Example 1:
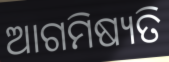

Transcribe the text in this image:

ଆଗମିଷ୍ୟତି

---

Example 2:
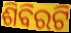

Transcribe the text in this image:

ଶିବିରଟି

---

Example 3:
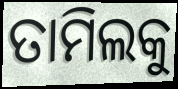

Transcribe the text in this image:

ତାମିଲକୁ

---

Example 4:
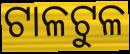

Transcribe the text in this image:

ଟାଳଟୁଳ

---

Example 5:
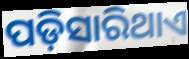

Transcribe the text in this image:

ପଡ଼ିସାରିଥାଏ